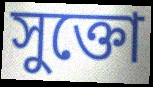
সুক্তো